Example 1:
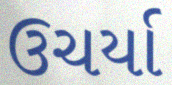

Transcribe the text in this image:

ઉચર્યા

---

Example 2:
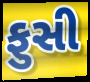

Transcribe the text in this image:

ફુસી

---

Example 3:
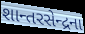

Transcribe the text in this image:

શાન્તરસેન્દ્રના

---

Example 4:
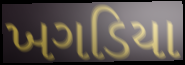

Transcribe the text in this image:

ખગડિયા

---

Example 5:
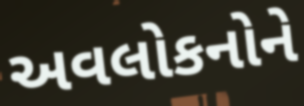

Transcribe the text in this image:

અવલોકનોને